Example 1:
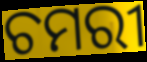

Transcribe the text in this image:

ଚମରୀ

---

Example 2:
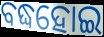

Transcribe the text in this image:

ବଦ୍ଧହୋଇ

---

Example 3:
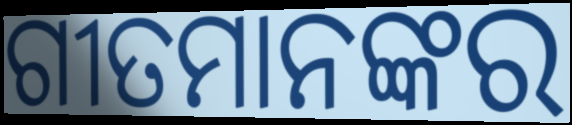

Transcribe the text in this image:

ଗୀତମାନଙ୍କର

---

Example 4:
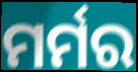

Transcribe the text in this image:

ମର୍ମର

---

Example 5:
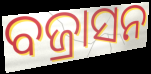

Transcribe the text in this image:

ବଜ୍ରାସନ